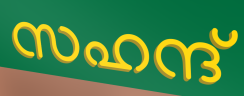
സഹന്ദ്